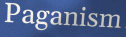
Paganism